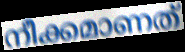
നീക്കമാണത്